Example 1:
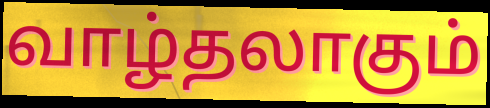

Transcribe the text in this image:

வாழ்தலாகும்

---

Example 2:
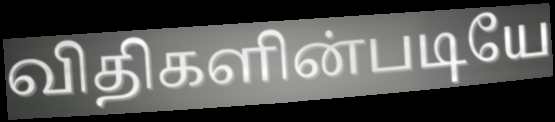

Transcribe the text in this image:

விதிகளின்படியே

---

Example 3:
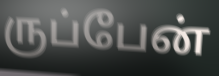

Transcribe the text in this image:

ருப்பேன்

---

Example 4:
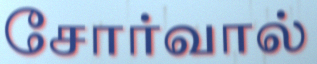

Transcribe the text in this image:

சோர்வால்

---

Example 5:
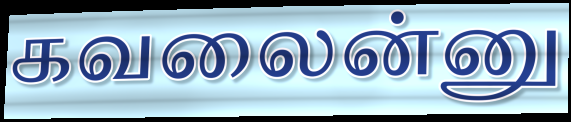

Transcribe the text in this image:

கவலைன்னு